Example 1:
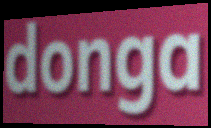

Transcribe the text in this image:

donga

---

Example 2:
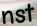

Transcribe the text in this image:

nst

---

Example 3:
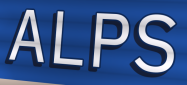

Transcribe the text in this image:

ALPS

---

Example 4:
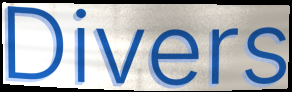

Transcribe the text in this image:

Divers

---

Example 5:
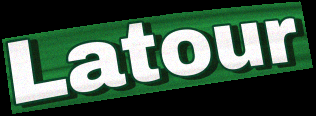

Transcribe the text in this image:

Latour